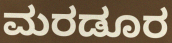
ಮರಡೂರ